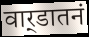
वार्डातनं